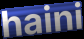
haini